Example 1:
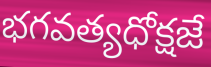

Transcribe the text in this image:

భగవత్యధోక్షజే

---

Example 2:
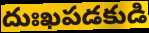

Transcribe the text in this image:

దుఃఖపడకుడి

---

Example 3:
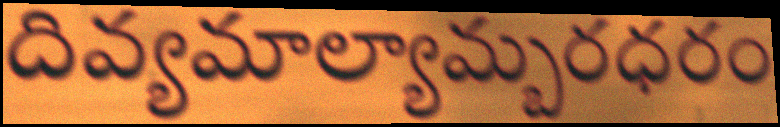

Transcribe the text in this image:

దివ్యమాల్యామ్బరధరం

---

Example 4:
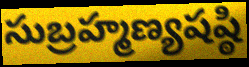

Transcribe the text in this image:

సుబ్రహ్మణ్యషష్ఠి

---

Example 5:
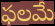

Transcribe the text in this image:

ఫలమే